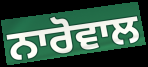
ਨਾਰੋਵਾਲ